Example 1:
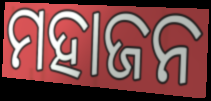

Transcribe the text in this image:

ମହାଜନ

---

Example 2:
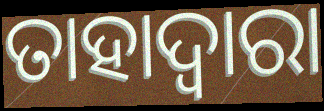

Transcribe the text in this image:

ତାହାଦ୍ଵାରା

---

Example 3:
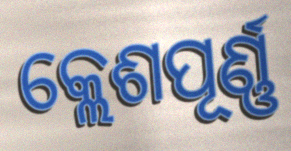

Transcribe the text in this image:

କ୍ଲେଶପୂର୍ଣ୍ଣ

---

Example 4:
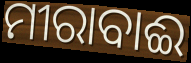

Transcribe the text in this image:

ମୀରାବାଈ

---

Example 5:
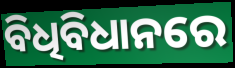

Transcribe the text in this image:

ବିଧିବିଧାନରେ